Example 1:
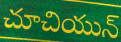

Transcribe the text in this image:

చూచియున్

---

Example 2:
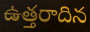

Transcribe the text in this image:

ఉత్తరాదిన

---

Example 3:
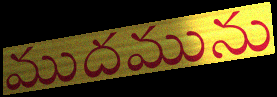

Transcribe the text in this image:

ముదమును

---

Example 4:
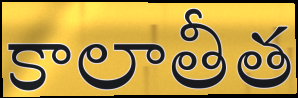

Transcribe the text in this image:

కాలాతీత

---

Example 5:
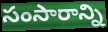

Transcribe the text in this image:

సంసారాన్ని